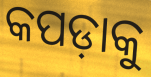
କପଡ଼ାକୁ